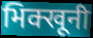
भिक्खूनी